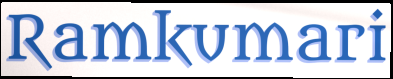
Ramkumari